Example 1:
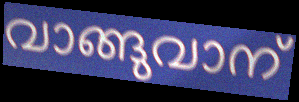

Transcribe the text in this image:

വാങ്ങുവാന്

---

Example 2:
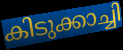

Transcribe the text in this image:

കിടുക്കാച്ചി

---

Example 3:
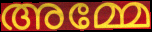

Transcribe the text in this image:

അമ്മേ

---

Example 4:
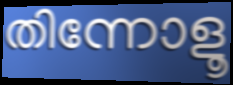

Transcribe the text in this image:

തിന്നോളൂ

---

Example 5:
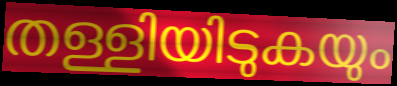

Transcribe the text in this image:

തള്ളിയിടുകയും